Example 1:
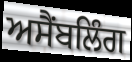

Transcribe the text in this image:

ਅਸੈਂਬਲਿੰਗ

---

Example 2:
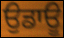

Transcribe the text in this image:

ਉਡਾਊ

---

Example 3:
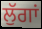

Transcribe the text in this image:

ਲੁੱਗਾਂ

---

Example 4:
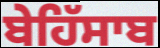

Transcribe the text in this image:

ਬੇਹਿੱਸਾਬ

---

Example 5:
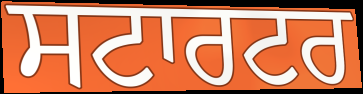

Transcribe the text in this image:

ਸਟਾਰਟਰ